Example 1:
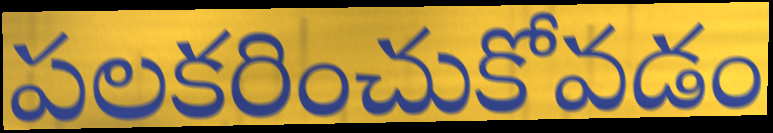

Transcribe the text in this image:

పలకరించుకోవడం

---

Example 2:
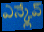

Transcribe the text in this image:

ఎన్క్లేవ్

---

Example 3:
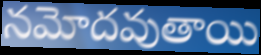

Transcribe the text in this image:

నమోదవుతాయి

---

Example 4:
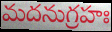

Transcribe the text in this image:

మదనుగ్రహః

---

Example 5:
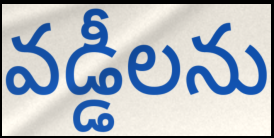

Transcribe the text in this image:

వడ్డీలను